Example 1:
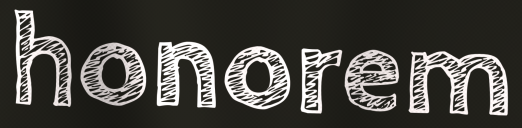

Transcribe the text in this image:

honorem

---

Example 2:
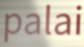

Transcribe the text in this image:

palai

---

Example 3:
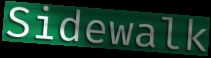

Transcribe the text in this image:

Sidewalk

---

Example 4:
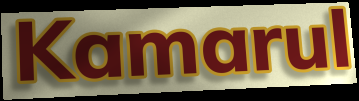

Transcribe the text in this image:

Kamarul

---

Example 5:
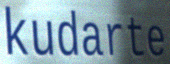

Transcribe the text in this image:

kudarte